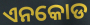
ଏନକୋଡ